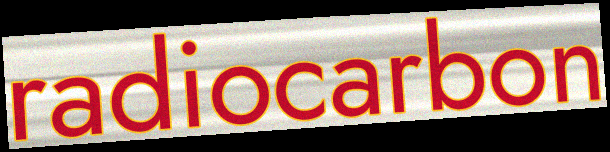
radiocarbon